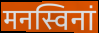
मनस्विनां